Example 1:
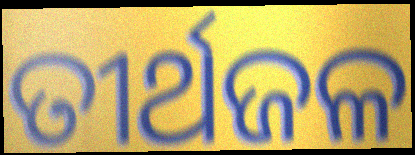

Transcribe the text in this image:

ତୀର୍ଥଜଳ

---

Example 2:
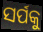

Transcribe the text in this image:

ସର୍ପକୁ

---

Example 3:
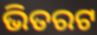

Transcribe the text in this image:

ଭିତରଟ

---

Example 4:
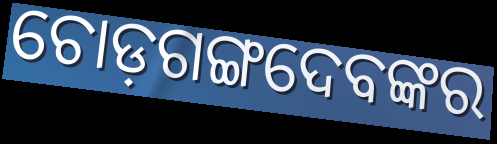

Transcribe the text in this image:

ଚୋଡ଼ଗଙ୍ଗଦେବଙ୍କର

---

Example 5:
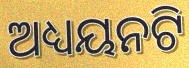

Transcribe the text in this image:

ଅଧ୍ୟୟନଟି